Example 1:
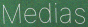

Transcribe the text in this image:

Medias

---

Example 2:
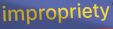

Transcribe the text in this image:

impropriety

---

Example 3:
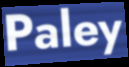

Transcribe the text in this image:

Paley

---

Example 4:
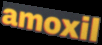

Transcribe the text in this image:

amoxil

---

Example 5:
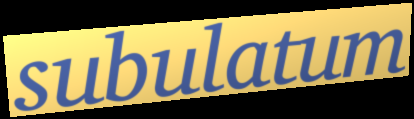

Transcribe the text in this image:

subulatum